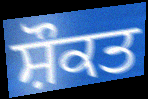
ਸ਼ੌਕਤ